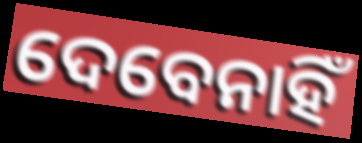
ଦେବେନାହିଁ